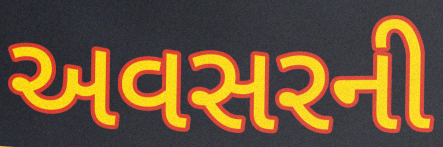
અવસરની